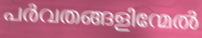
പർവതങ്ങളിന്മേൽ